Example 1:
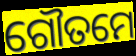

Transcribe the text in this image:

ଗୌତମେ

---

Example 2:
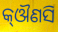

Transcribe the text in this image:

କ୍ଔଣସି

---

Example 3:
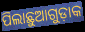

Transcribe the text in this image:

ପିଲାଛୁଆଗୁଡ଼ାକ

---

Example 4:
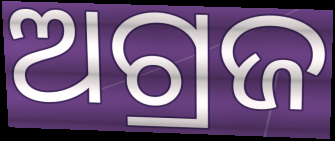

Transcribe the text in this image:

ଅଗ୍ରଜ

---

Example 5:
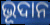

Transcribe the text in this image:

ଭୂଦାନ